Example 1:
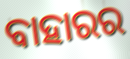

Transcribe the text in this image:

ବାହାରର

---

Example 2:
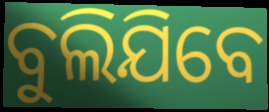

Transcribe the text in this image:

ବୁଲିଯିବେ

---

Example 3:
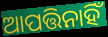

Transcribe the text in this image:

ଆପତ୍ତିନାହିଁ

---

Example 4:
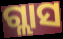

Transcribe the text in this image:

ଗ୍ଲାସ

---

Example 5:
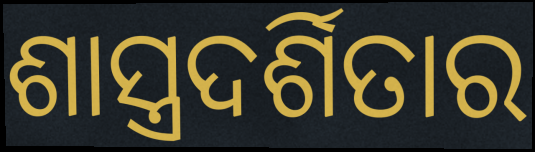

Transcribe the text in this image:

ଶାସ୍ତ୍ରଦର୍ଶିତାର